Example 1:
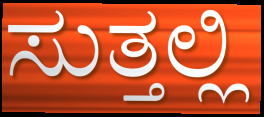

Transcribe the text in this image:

ಸುತ್ತಲ್ಲಿ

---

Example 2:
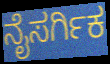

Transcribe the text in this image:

ನೈಸರ್ಗಿಕ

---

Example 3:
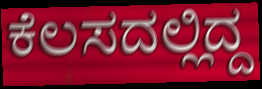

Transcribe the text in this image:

ಕೆಲಸದಲ್ಲಿದ್ದ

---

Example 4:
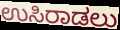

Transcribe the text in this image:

ಉಸಿರಾಡಲು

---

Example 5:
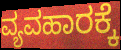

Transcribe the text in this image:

ವ್ಯವಹಾರಕ್ಕೆ